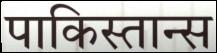
पाकिस्तान्स